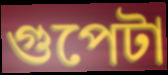
গুপেটা